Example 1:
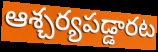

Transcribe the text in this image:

ఆశ్చర్యపడ్డారట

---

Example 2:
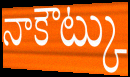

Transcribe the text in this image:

నాకౌట్కు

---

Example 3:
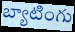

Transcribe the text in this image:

బ్యాటింగు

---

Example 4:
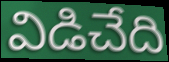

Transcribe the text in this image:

విడిచేది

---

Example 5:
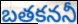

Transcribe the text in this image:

బతకననీ